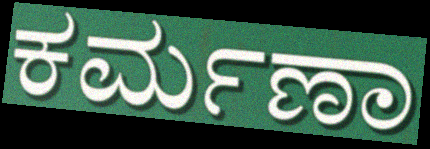
ಕರ್ಮಣಾ